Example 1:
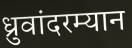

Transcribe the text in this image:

ध्रुवांदरम्यान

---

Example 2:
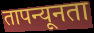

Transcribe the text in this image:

तापन्यूनता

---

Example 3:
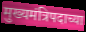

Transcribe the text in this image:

मुख्यमंत्रिपदाच्या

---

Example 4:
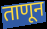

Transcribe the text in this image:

ताणून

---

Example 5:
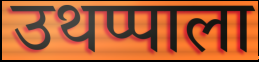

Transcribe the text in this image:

उथप्पाला